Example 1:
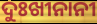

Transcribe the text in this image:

ଦୁଃଖୀନାନୀ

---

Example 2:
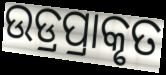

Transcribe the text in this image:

ଉଡ୍ରପ୍ରାକୃତ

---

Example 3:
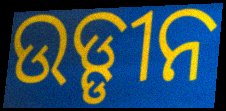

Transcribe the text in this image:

ଉଡ୍ଡୀନ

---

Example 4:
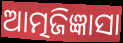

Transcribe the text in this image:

ଆତ୍ମଜିଜ୍ଞାସା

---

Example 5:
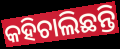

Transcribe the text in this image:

କହିଚାଲିଛନ୍ତି